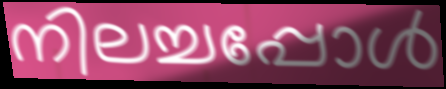
നിലച്ചപ്പോൾ